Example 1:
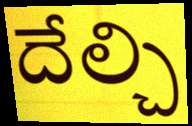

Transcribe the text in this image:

దేల్చి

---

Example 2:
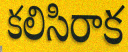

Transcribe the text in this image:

కలిసిరాక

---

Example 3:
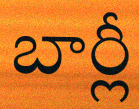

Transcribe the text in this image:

బార్లీ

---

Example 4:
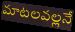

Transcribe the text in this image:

మాటలవల్లనే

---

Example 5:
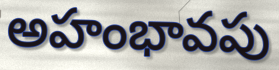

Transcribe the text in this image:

అహంభావపు